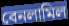
বেনলামিল